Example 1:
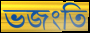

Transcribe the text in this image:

ভজংতি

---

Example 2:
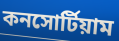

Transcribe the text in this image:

কনসোর্টিয়াম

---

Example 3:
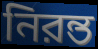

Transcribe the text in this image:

নিরন্ত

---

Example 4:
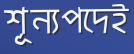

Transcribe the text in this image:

শূন্যপদেই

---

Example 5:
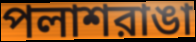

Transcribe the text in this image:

পলাশরাঙা